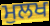
ਮੁਲਖ